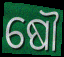
ଷୌ